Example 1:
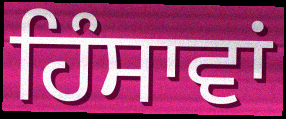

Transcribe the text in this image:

ਹਿੰਸਾਵਾਂ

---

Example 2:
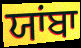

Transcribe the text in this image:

ਯਾਂਬਾ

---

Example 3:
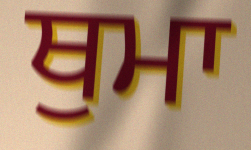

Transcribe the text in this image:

ਥੁਮਾ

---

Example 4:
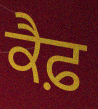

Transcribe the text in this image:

ਕੈਫ਼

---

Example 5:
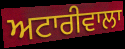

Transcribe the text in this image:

ਅਟਾਰੀਵਾਲਾ